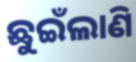
ଛୁଇଁଲାଣି